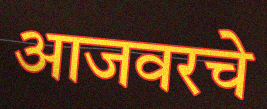
आजवरचे